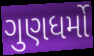
ગુણધર્મો